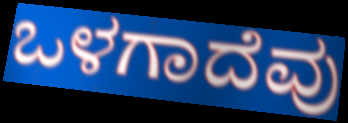
ಒಳಗಾದೆವು